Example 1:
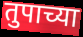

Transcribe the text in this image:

तुपाच्या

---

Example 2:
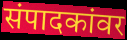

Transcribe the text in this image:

संपादकांवर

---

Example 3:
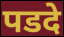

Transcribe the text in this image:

पडदे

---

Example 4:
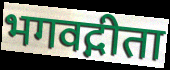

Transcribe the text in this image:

भगवद्गीता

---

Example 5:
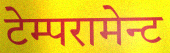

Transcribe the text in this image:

टेम्परामेन्ट